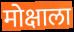
मोक्षाला